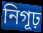
নিগূঢ়